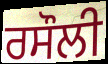
ਰਸੌਲੀ